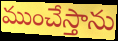
ముంచేస్తాను